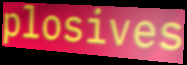
plosives